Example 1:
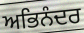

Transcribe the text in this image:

ਅਭਿਨੰਦਰ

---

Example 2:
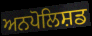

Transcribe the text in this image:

ਅਨਪੋਲਿਸ਼ਡ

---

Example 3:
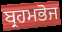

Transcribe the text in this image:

ਬ੍ਰਹਮਭੋਜ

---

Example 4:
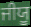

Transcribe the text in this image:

ਜੀਯੂ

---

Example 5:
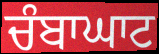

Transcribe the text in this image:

ਚੰਬਾਘਾਟ